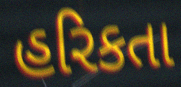
હરિકતા